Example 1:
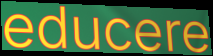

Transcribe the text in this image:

educere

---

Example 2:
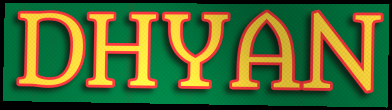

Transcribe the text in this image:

DHYAN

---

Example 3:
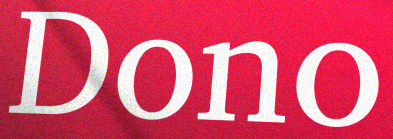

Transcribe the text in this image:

Dono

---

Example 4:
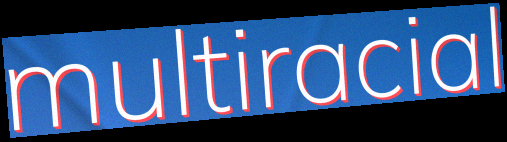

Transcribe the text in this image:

multiracial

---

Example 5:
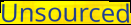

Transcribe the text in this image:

Unsourced